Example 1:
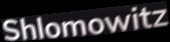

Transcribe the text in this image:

Shlomowitz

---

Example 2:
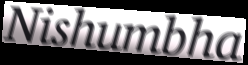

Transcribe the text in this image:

Nishumbha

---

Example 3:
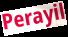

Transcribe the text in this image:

Perayil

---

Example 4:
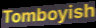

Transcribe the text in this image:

Tomboyish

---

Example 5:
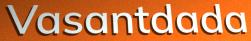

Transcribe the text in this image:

Vasantdada